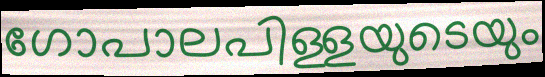
ഗോപാലപിള്ളയുടെയും